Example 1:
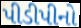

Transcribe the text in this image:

પીડીપીનો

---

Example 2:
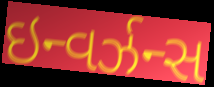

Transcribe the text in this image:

ઇન્વર્ઝન્સ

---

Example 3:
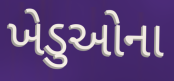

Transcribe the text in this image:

ખેડુઓના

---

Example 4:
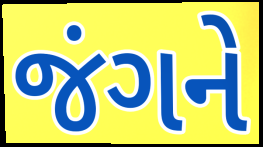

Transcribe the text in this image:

જંગને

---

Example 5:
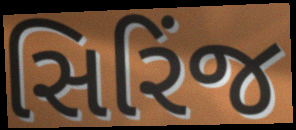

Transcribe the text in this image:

સિરિંજ